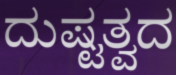
ದುಷ್ಟತ್ವದ